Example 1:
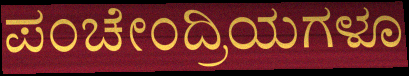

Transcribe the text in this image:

ಪಂಚೇಂದ್ರಿಯಗಳೂ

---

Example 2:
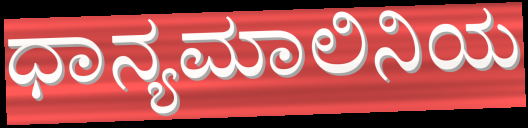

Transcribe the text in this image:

ಧಾನ್ಯಮಾಲಿನಿಯ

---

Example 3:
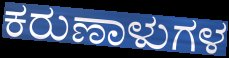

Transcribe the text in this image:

ಕರುಣಾಳುಗಳ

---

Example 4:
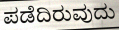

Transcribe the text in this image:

ಪಡೆದಿರುವುದು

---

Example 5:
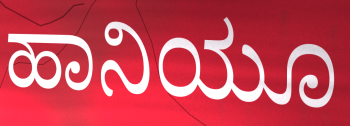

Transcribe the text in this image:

ಹಾನಿಯೂ